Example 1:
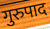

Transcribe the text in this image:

गुरुपाद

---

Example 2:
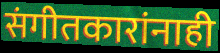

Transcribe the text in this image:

संगीतकारांनाही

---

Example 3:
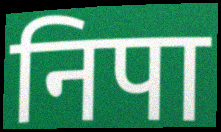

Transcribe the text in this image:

निपा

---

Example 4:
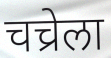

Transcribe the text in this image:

चच्रेला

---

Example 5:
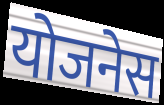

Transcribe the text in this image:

योजनेस